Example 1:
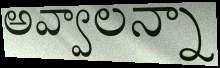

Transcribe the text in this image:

అవ్వాలన్నా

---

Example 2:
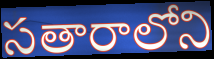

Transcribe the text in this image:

సతారాలోని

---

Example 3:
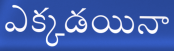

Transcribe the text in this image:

ఎక్కడయినా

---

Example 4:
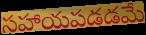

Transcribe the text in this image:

సహాయపడడమే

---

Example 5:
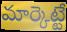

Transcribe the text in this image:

మార్కెట్టే